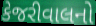
કેજરીવાલનો